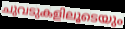
ചുവടുകളിലൂടെയും